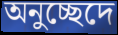
অনুচ্ছেদে